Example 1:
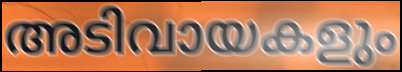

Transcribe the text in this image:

അടിവായകളും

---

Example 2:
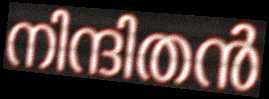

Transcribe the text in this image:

നിന്ദിതൻ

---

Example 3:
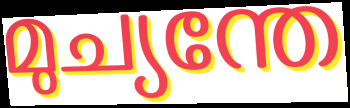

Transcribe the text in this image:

മുച്യന്തേ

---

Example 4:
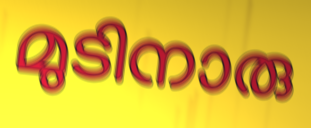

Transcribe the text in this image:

മുടിനാരു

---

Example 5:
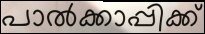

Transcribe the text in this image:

പാൽക്കാപ്പിക്ക്